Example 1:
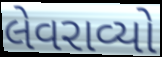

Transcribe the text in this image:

લેવરાવ્યો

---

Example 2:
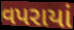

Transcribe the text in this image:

વપરાયાં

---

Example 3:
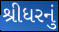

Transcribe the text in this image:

શ્રીધરનું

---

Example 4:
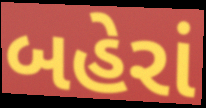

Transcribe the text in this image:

બહેરાં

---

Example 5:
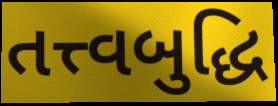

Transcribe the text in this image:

તત્ત્વબુદ્ધિ